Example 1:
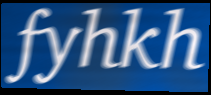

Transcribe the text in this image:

fyhkh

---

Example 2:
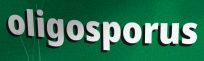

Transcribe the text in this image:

oligosporus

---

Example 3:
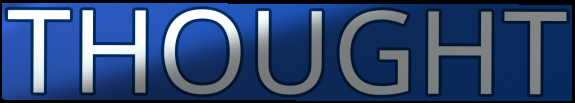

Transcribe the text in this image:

THOUGHT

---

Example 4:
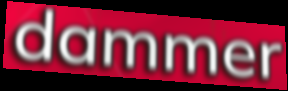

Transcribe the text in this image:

dammer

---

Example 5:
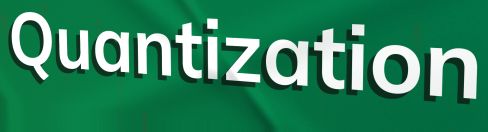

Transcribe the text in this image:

Quantization